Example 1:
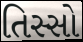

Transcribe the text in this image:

તિસ્સો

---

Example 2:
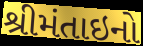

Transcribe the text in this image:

શ્રીમંતાઇનો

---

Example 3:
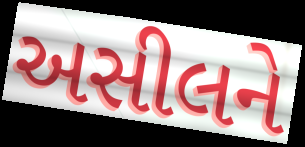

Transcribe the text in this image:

અસીલને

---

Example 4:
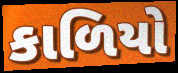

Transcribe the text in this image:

કાળિયો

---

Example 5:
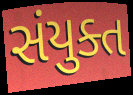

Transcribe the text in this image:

સંયુક્ત